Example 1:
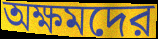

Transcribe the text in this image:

অক্ষমদের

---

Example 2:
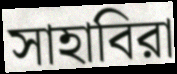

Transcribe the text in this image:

সাহাবিরা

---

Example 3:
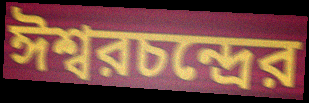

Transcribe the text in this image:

ঈশ্বরচন্দ্রের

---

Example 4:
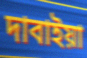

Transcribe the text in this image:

দাবাইয়া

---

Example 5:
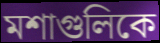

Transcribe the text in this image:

মশাগুলিকে